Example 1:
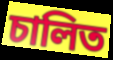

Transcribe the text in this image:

চালিত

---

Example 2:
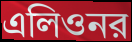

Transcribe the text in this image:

এলিওনর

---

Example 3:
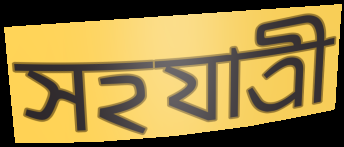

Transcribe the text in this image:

সহযাত্রী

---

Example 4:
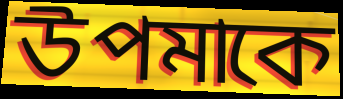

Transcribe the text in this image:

উপমাকে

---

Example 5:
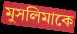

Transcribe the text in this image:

মুসলিমাকে